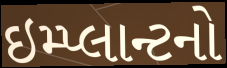
ઇમ્પ્લાન્ટનો